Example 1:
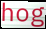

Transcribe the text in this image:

hog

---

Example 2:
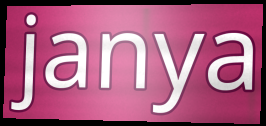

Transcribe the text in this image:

janya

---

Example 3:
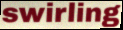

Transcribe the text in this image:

swirling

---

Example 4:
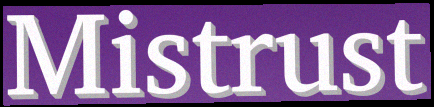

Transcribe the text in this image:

Mistrust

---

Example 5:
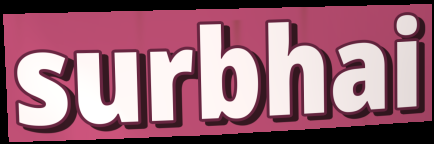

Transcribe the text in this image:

surbhai